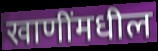
खाणींमधील